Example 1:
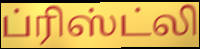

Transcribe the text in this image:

ப்ரிஸ்ட்லி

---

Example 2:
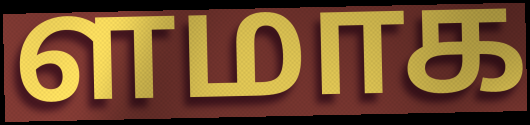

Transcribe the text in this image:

ளமாக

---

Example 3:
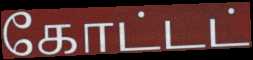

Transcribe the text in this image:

கோட்டட்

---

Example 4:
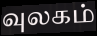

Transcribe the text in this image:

வுலகம்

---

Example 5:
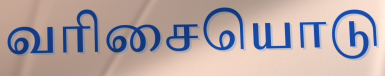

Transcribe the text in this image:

வரிசையொடு